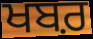
ਖਬ਼ਰ